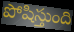
పోషిస్తుంది